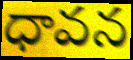
ధావన